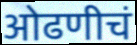
ओढणीचं